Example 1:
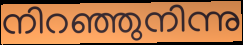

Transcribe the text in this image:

നിറഞ്ഞുനിന്നു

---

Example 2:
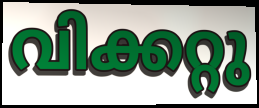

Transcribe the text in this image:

വിക്കറ്റു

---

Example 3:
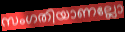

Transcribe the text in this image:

സംഗതിയാണല്ലോ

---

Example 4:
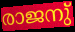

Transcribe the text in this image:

രാജനു്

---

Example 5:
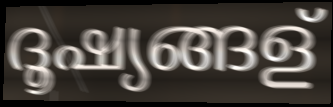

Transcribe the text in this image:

ദൂഷ്യങ്ങള്